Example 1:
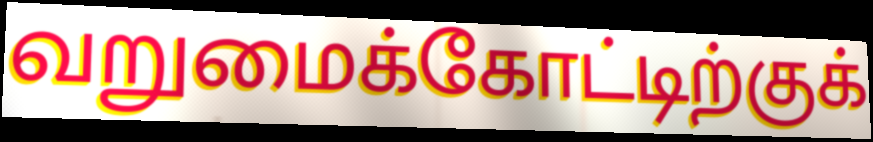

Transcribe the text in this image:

வறுமைக்கோட்டிற்குக்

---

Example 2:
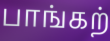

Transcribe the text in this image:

பாங்கற்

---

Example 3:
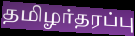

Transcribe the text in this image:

தமிழர்தரப்பு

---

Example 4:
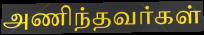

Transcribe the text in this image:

அணிந்தவர்கள்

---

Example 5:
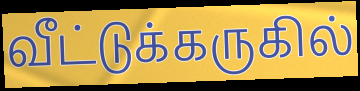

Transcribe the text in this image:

வீட்டுக்கருகில்